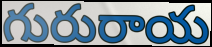
గురురాయ